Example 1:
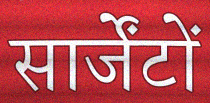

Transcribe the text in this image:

सार्जेंटों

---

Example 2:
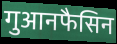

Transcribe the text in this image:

गुआनफैसिन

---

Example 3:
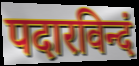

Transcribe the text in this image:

पदारविन्दं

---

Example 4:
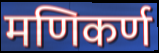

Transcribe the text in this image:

मणिकर्ण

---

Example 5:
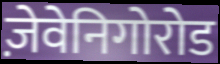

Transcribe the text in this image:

ज़ेवेनिगोरोड